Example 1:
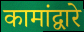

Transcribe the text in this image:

कामांद्वारे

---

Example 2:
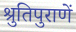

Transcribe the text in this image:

श्रुतिपुराणें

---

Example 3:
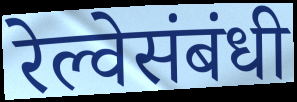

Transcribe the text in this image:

रेल्वेसंबंधी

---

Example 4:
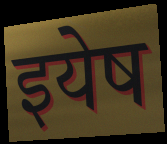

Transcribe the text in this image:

इयेष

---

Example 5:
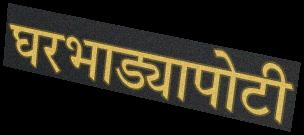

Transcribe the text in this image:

घरभाड्यापोटी